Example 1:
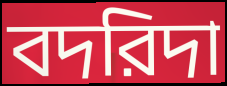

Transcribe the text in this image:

বদরিদা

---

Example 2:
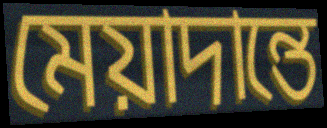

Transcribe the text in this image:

মেয়াদান্তে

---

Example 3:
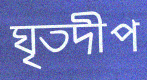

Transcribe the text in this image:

ঘৃতদীপ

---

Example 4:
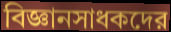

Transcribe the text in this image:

বিজ্ঞানসাধকদের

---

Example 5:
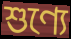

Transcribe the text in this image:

শুণ্যে